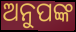
ଅନୁପଙ୍କ